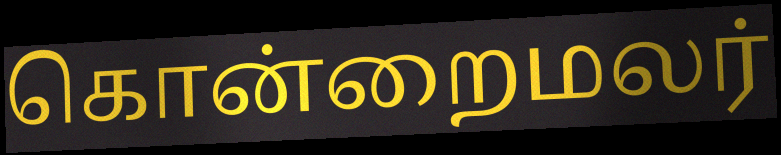
கொன்றைமலர்